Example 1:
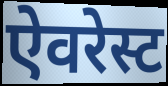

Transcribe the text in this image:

ऐवरेस्ट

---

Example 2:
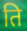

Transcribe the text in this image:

ति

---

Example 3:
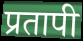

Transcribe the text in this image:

प्रतापी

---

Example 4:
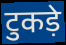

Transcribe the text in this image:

टुकड़े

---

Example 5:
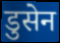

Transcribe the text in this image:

डुसेन